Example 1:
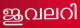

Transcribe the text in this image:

ജുവലറി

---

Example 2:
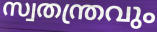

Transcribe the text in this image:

സ്വതന്ത്രവും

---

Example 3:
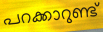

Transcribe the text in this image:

പറക്കാറുണ്ട്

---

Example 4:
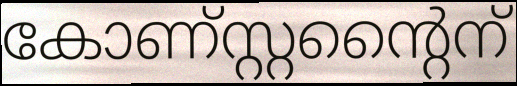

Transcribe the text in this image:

കോണ്സ്റ്റന്റൈന്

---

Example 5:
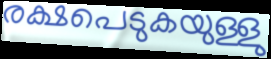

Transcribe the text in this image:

രക്ഷപെടുകയുള്ളു